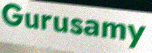
Gurusamy